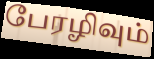
பேரழிவும்